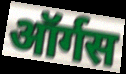
ऑर्गस